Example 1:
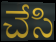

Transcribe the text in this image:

చేసి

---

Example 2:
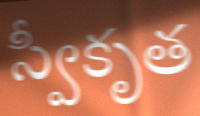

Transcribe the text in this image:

స్వీకృత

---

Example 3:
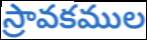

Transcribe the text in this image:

స్రావకముల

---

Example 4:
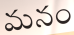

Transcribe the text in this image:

మనం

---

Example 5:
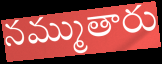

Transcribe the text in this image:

నమ్ముతారు